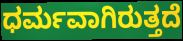
ಧರ್ಮವಾಗಿರುತ್ತದೆ